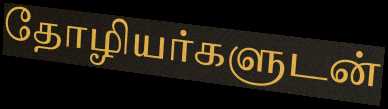
தோழியர்களுடன்